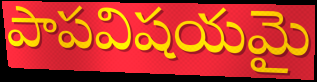
పాపవిషయమై